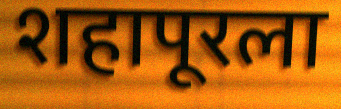
शहापूरला